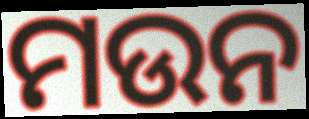
ମଉନ